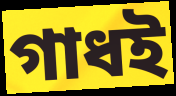
গাধই